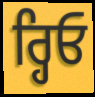
ਰ੍ਹਿਓ